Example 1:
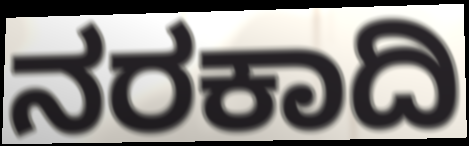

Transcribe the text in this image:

ನರಕಾದಿ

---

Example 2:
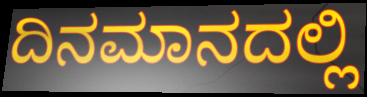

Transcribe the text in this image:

ದಿನಮಾನದಲ್ಲಿ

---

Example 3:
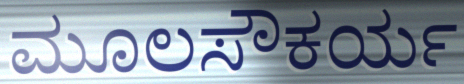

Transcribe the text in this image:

ಮೂಲಸೌಕರ್ಯ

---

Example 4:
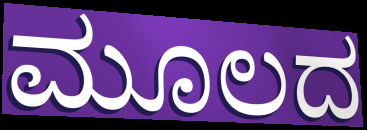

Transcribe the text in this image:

ಮೂಲದ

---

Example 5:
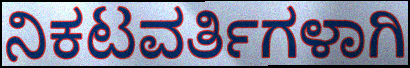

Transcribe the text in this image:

ನಿಕಟವರ್ತಿಗಳಾಗಿ